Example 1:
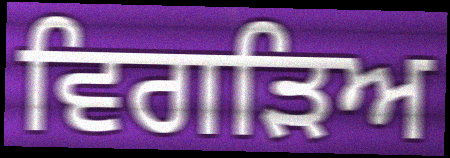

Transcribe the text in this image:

ਵਿਗੜਿਅ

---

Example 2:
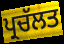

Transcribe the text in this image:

ਪ੍ਰਚੱਲਤ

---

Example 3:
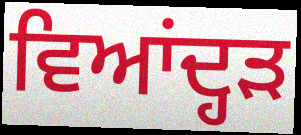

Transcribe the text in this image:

ਵਿਆਂਦ੍ਹੜ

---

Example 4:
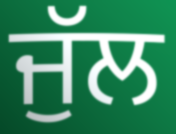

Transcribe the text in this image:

ਜੁੱਲ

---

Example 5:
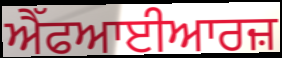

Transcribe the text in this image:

ਐੱਫਆਈਆਰਜ਼